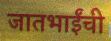
जातभाईंची